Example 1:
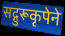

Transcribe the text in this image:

सद्गुरूकृपेने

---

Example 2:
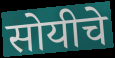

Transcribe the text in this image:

सोयीचे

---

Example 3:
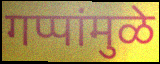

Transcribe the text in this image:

गप्पांमुळे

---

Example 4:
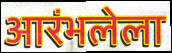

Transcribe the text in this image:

आरंभलेला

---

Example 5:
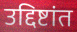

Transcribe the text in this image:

उद्दिष्टांत